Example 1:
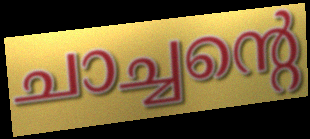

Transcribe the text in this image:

ചാച്ചന്റെ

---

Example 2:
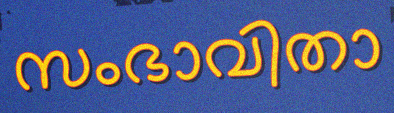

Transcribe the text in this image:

സംഭാവിതാ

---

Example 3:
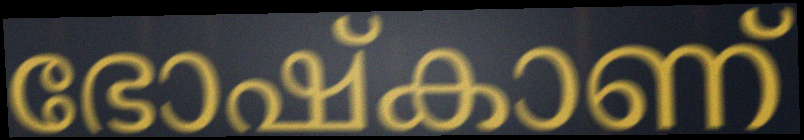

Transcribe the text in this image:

ഭോഷ്കാണ്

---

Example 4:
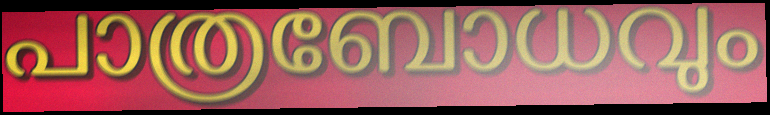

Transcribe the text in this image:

പാത്രബോധവും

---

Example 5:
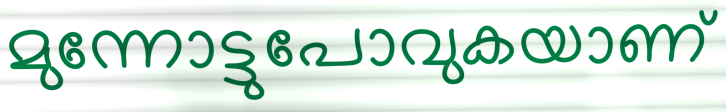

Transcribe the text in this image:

മുന്നോട്ടുപോവുകയാണ്